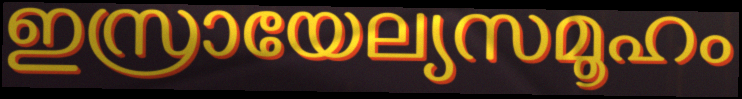
ഇസ്രായേല്യസമൂഹം